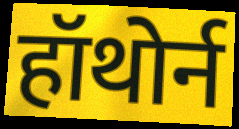
हॉथोर्न